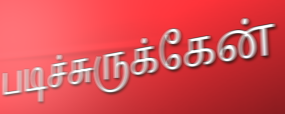
படிச்சுருக்கேன்